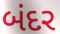
બંદર